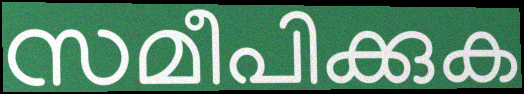
സമീപിക്കുക